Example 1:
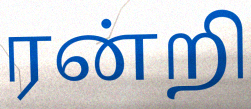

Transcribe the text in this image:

ரன்றி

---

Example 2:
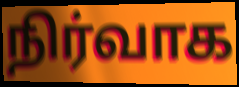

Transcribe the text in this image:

நிர்வாக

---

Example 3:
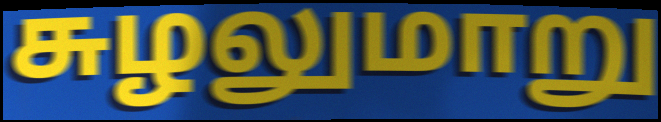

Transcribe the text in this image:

சுழலுமாறு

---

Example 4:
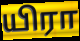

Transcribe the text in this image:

யிரா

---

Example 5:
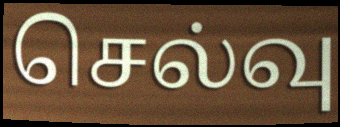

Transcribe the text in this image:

செல்வு